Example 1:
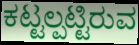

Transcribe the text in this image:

ಕಟ್ಟಲ್ಪಟ್ಟಿರುವ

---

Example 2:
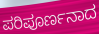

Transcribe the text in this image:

ಪರಿಪೂರ್ಣನಾದ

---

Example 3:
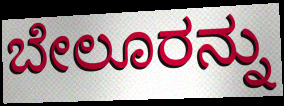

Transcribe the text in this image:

ಬೇಲೂರನ್ನು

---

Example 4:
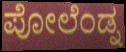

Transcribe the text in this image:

ಪೋಲೆಂಡ್ನ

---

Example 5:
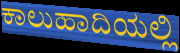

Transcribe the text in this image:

ಕಾಲುಹಾದಿಯಲ್ಲಿ